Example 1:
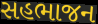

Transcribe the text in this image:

સહભાજન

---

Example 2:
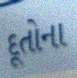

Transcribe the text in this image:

દૂતોના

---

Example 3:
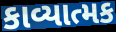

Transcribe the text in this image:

કાવ્યાત્મક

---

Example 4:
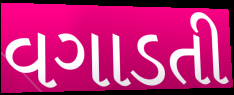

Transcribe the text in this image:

વગાડતી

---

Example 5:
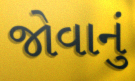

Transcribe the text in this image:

જોવાનું